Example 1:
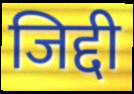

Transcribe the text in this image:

जिद्दी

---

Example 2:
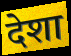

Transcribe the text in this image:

देशा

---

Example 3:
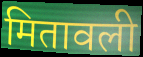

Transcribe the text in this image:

मितावली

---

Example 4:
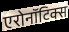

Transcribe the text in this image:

एरोनॉटिक्स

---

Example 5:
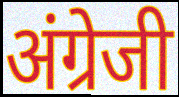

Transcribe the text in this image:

अंग्रेजी